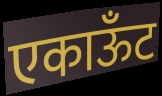
एकाऊँट